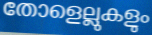
തോളെല്ലുകളും